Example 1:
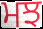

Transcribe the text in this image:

ਮਝ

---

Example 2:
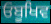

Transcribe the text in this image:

ਓਬੂਖਿਵ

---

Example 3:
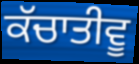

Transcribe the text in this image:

ਕੱਚਾਤੀਵੂ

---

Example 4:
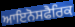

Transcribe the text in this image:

ਆਇਨੋਸਫੈਰਿਕ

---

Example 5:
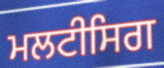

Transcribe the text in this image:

ਮਲਟੀਸਿਗ